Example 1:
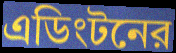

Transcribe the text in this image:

এডিংটনের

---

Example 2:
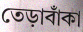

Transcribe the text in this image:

তেড়াবাঁকা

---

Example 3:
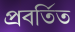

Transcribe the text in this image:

প্রবর্তিত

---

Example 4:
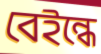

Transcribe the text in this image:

বেইন্ধে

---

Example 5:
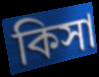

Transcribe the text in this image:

কিসা